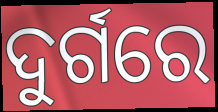
ଦୁର୍ଗରେ